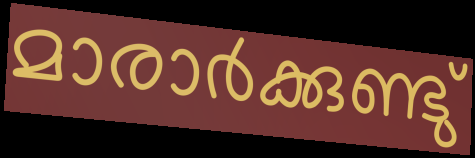
മാരാർക്കുണ്ടു്